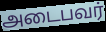
அடைபவர்